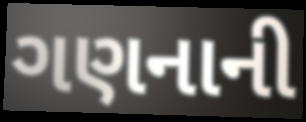
ગણનાની